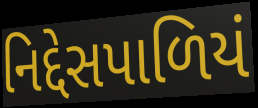
નિદ્દેસપાળિયં